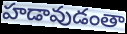
హడావుడంతా